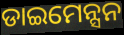
ଡାଇମେନ୍ସନ